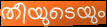
തീയുടെയും